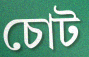
চোট